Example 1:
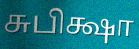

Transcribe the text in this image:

சுபிக்ஷா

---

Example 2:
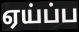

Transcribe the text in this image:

ஏய்ப்ப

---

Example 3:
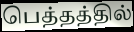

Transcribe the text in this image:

பெத்தத்தில்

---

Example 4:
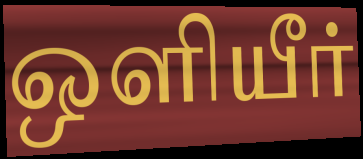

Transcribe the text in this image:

ஒளியீர்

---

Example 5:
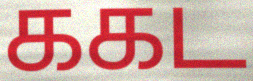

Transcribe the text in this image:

ககட